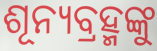
ଶୂନ୍ୟବ୍ରହ୍ମଙ୍କୁ